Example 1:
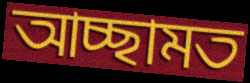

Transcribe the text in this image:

আচ্ছামত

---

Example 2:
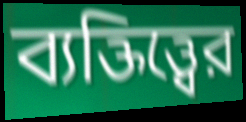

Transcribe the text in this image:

ব্যক্তিত্ত্বের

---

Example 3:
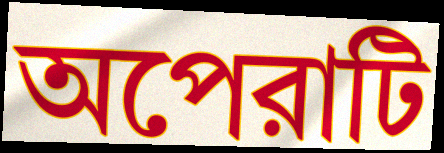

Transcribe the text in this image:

অপেরাটি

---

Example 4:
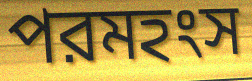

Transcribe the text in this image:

পরমহংস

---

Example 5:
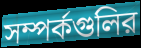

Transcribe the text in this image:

সম্পর্কগুলির